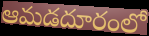
ఆమడదూరంలో